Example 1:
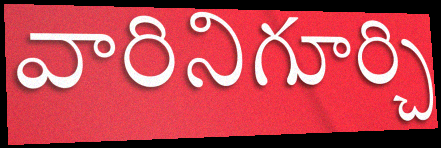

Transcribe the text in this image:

వారినిగూర్చి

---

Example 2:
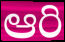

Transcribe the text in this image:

ఆరి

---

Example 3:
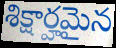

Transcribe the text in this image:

శిక్షార్హమైన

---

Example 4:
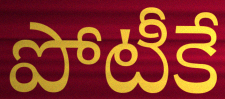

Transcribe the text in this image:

పోటీకే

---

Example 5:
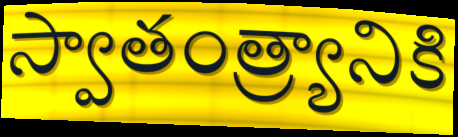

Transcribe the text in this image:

స్వాతంత్ర్యానికి